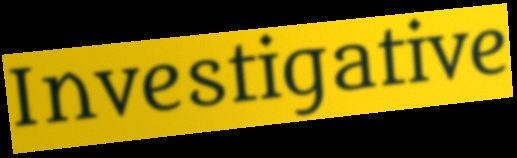
Investigative